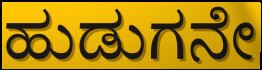
ಹುಡುಗನೇ